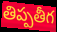
తిప్పతీగ